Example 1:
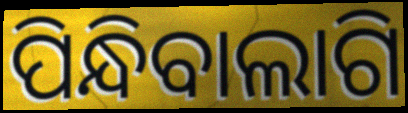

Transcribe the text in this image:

ପିନ୍ଧିବାଲାଗି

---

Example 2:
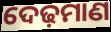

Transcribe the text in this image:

ଦେଢ଼ମାଣ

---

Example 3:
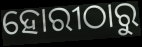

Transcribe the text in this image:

ହୋରୀଠାରୁ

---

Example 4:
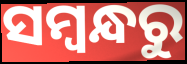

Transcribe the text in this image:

ସମ୍ୱନ୍ଧରୁ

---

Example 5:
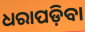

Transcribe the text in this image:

ଧରାପଡ଼ିବା